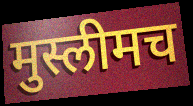
मुस्लीमच